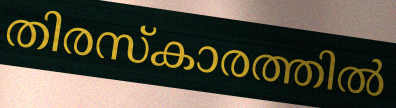
തിരസ്കാരത്തിൽ